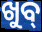
ଖୁବ୍